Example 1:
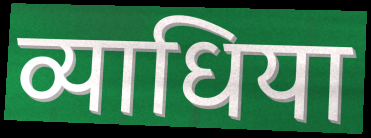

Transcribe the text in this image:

व्याधिया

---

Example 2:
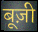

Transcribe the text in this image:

बूज़ी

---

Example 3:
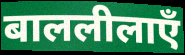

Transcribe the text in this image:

बाललीलाएँ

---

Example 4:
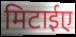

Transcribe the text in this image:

मिटाईए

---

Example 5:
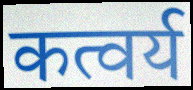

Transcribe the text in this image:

कत्वर्य